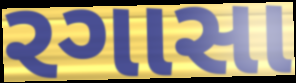
રગાસા